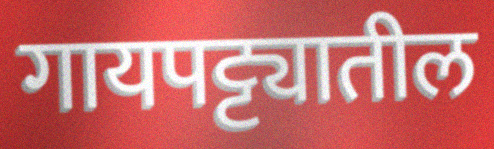
गायपट्ट्यातील